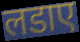
लडाए